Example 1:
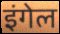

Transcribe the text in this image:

इंगेल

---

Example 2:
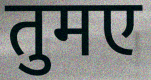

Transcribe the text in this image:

तुमए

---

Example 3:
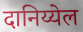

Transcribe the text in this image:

दानिय्येल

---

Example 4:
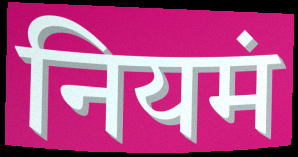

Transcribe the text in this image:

नियमं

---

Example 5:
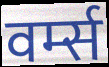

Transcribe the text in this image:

वर्म्स